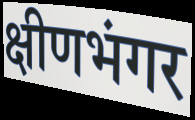
क्षीणभंगर